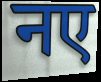
नए